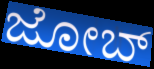
ಜೋಬ್